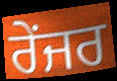
ਰੇਂਜਰ